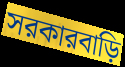
সরকারবাড়ি